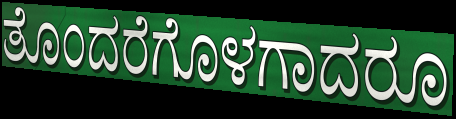
ತೊಂದರೆಗೊಳಗಾದರೂ